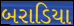
બરાડિયા